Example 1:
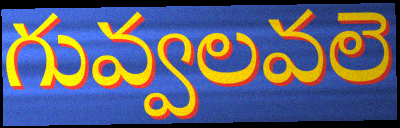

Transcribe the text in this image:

గువ్వలవలె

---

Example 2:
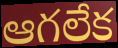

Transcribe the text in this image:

ఆగలేక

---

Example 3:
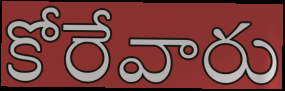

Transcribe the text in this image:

కోరేవారు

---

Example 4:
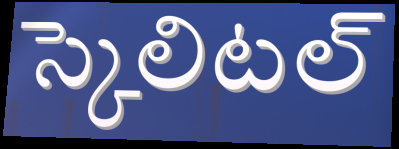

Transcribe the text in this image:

స్కెలిటల్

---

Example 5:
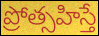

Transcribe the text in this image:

ప్రోత్సహిస్తే